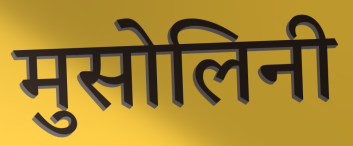
मुसोलिनी